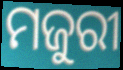
ମଜୁରୀ